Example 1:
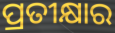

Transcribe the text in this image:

ପ୍ରତୀକ୍ଷାର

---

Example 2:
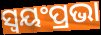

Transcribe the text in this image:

ସ୍ଵୟଂପ୍ରଭା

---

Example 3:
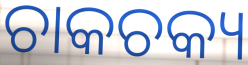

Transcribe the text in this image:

ଚାକଚକ୍ୟ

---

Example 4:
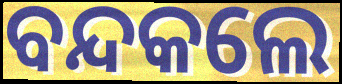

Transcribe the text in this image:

ବନ୍ଦକଲେ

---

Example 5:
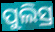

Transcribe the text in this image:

ପୁଲିସ୍ର